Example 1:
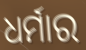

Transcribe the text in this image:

ଧର୍ମାର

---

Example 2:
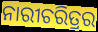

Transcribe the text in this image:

ନାରୀଚରିତ୍ରର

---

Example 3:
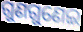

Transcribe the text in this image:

ଗୁଣଗୁଣେଇ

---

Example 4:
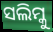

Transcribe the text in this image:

ସଲିମ୍କୁ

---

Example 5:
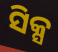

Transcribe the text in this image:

ସିକ୍ସ